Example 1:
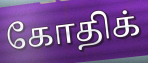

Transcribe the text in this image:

கோதிக்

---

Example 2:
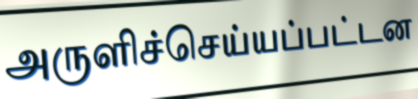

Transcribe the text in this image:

அருளிச்செய்யப்பட்டன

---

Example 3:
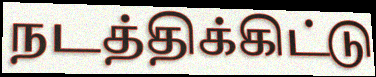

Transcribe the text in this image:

நடத்திக்கிட்டு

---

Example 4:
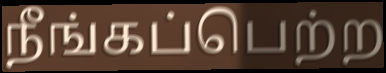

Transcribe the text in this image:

நீங்கப்பெற்ற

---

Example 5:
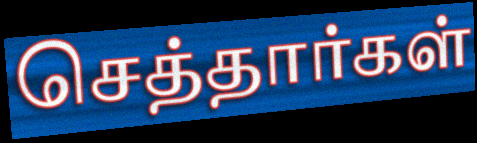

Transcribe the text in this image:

செத்தார்கள்